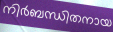
നിർബന്ധിതനായ